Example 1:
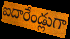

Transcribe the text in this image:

ఐదారేండ్లుగా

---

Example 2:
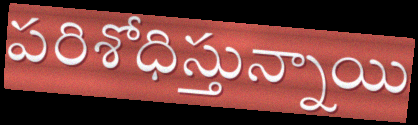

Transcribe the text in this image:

పరిశోధిస్తున్నాయి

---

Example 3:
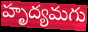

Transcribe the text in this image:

హృద్యమగు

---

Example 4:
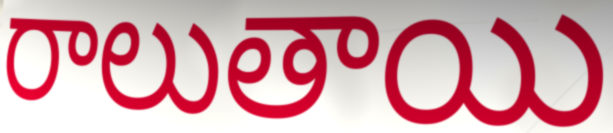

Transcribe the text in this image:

రాలుతాయి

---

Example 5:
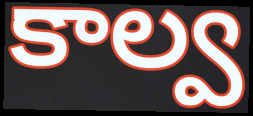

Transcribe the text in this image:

కాల్వ